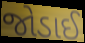
જોડાઈ